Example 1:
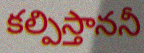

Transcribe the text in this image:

కల్పిస్తాననీ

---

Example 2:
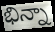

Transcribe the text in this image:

భిన్నా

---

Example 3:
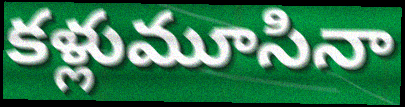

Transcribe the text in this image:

కళ్లుమూసినా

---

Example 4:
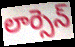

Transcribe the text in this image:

లార్సెన్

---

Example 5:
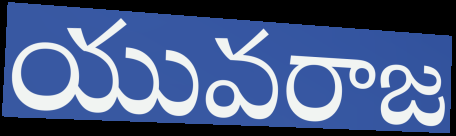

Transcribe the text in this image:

యువరాజ